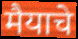
मैयाचे